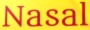
Nasal